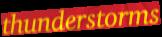
thunderstorms